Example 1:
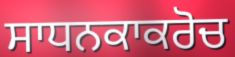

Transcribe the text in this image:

ਸਾਧਨਕਾਕਰੋਚ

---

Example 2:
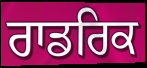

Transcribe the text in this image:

ਰਾਡਰਿਕ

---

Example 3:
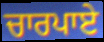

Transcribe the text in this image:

ਚਾਰਪਾਏ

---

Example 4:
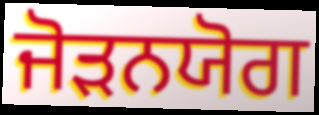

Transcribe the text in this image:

ਜੋੜਨਯੋਗ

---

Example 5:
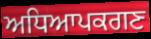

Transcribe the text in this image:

ਅਧਿਆਪਕਗਣ